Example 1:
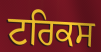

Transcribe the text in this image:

ਟਰਿਕਸ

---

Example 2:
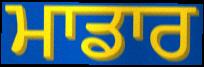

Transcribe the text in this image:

ਮਾਡਾਰ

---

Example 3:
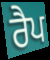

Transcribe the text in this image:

ਰੈਪ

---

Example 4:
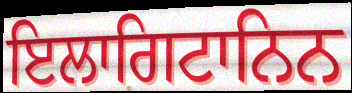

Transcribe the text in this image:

ਇਲਾਗਿਟਾਨਿਨ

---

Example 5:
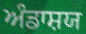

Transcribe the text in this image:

ਅੰਡਾਸ਼ਯ